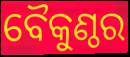
ବୈକୁଣ୍ଠର